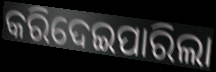
କରିଦେଇପାରିଲା